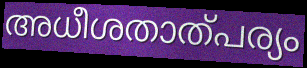
അധീശതാത്പര്യം